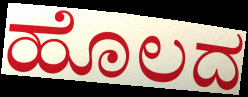
ಹೊಲದ